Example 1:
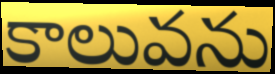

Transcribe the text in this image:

కాలువను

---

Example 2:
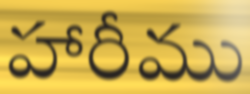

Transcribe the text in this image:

హారీము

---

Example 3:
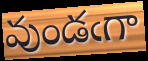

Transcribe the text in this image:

వుండఁగా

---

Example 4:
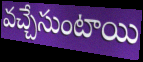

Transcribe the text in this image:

వచ్చేసుంటాయి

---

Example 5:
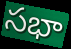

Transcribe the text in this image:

సభా